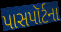
પાસપૉર્ટના